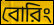
বোরিং